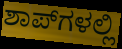
ಶಾಪ್‌ಗಳಲ್ಲಿ